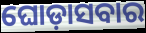
ଘୋଡ଼ାସବାର